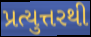
પ્રત્યુત્તરથી